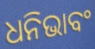
ଧନିଭାବଂ